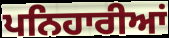
ਪਨਿਹਾਰੀਆਂ